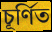
চূর্ণিত